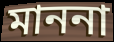
মাননা